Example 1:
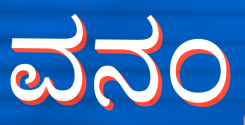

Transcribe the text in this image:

ವನಂ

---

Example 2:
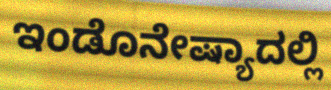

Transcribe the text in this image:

ಇಂಡೊನೇಷ್ಯಾದಲ್ಲಿ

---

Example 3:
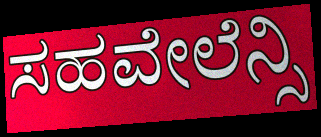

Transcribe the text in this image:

ಸಹವೇಲೆನ್ಸಿ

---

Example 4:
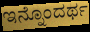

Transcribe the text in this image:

ಇನ್ನೊಂದರ್ಥ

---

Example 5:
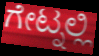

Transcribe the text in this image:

ಗೇಟ್ನಲ್ಲಿ